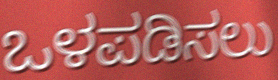
ಒಳಪಡಿಸಲು